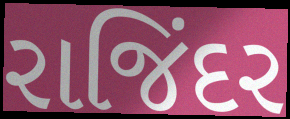
રાજિંદર